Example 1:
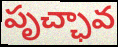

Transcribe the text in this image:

పృచ్ఛావ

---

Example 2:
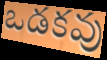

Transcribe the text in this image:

ఒడకవు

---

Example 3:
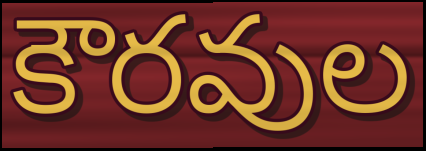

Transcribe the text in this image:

కౌరవుల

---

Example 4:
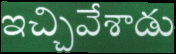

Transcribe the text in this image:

ఇచ్చివేశాడు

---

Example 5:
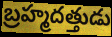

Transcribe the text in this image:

బ్రహ్మదత్తుడు